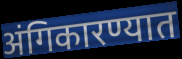
अंगिकारण्यात